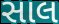
સાલ